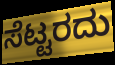
ಸೆಟ್ಟರದು